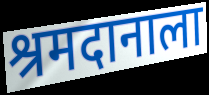
श्रमदानाला